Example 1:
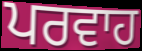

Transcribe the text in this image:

ਪਰਵਾਹ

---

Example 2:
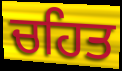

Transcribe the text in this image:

ਚਹਿਤ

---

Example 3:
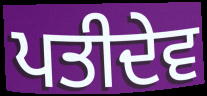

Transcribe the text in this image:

ਪਤੀਦੇਵ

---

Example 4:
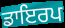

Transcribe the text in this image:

ਡਾਇਰਪ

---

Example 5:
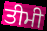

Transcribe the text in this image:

ਤੀਮੀ